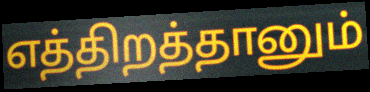
எத்திறத்தானும்